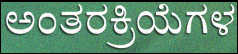
ಅಂತರಕ್ರಿಯೆಗಳ